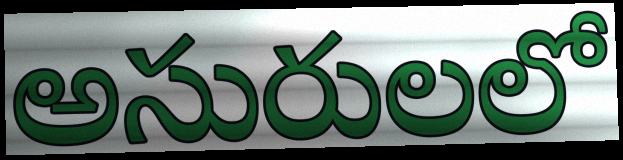
అసురులలో